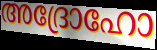
അദ്രോഹോ